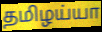
தமிழய்யா